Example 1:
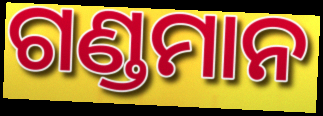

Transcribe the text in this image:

ଗଣ୍ଡମାନ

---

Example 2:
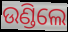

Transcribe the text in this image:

ଉଣ୍ଡିଲେ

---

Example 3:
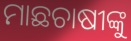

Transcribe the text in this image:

ମାଛଚାଷୀଙ୍କୁ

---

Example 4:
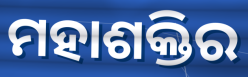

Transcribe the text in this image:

ମହାଶକ୍ତିର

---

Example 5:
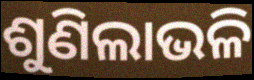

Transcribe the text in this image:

ଶୁଣିଲାଭଳି